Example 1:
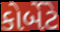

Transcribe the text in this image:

કોર્બેટે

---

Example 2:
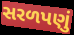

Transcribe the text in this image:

સરળપણું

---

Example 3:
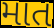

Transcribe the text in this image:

માત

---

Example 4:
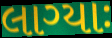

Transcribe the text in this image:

લાગ્યાઃ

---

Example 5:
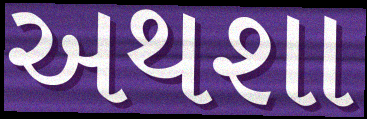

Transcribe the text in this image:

અથશા